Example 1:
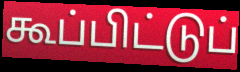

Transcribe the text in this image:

கூப்பிட்டுப்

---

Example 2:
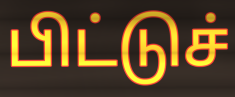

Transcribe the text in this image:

பிட்டுச்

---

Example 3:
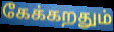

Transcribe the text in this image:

கேக்கறதும்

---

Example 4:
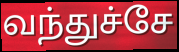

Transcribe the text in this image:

வந்துச்சே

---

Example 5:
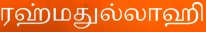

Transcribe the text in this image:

ரஹ்மதுல்லாஹி